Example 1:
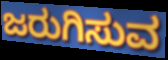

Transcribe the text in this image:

ಜರುಗಿಸುವ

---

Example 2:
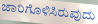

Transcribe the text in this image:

ಜಾರಿಗೊಳಿಸಿರುವುದು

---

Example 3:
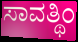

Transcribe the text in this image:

ಸಾವತ್ಥಿಂ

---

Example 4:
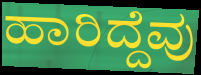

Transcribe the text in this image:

ಹಾರಿದ್ದೆವು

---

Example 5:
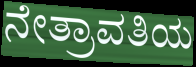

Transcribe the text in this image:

ನೇತ್ರಾವತಿಯ